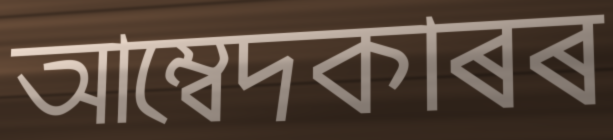
আম্বেদকাৰৰ